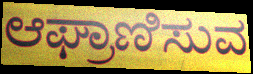
ಆಘ್ರಾಣಿಸುವ